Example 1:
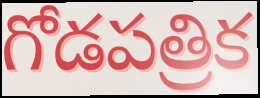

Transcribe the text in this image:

గోడపత్రిక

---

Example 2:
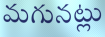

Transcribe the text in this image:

మగునట్లు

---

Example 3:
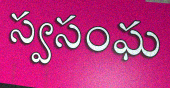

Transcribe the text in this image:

స్వసంఘ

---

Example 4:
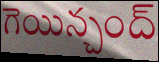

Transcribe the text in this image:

గెయిన్చంద్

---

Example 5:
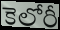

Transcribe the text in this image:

కెలోరీ